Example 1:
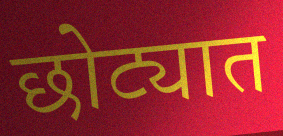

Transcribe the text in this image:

छोट्यात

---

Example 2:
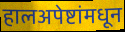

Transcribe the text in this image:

हालअपेष्टांमधून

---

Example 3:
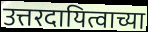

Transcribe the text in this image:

उत्तरदायित्वाच्या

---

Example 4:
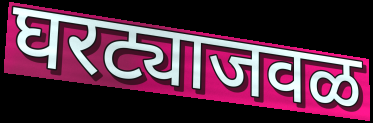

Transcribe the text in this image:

घरट्याजवळ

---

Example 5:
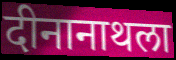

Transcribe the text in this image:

दीनानाथला